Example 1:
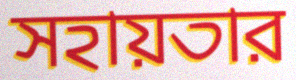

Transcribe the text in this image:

সহায়তার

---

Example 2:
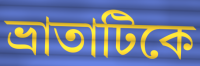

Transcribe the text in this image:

ভ্রাতাটিকে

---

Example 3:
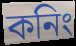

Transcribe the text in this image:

কনিং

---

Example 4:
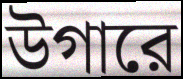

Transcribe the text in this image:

উগারে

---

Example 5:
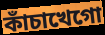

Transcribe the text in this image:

কাঁচাখেগো